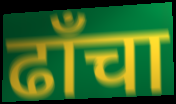
ढाँचा